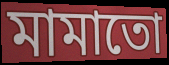
মামাতো